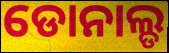
ଡୋନାଲ୍ଡ